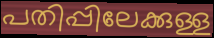
പതിപ്പിലേക്കുള്ള